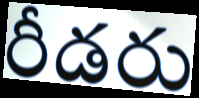
రీడరు